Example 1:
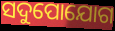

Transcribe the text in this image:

ସଦୁପୋଯୋଗ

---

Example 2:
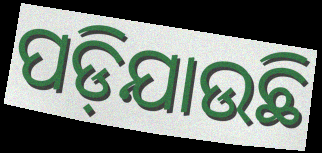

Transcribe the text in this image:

ପଡ଼ିଯାଉଛି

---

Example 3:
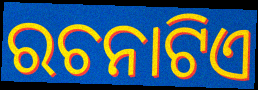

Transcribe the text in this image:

ରଚନାଟିଏ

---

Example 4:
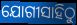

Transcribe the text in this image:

ଯୋଗୀସାହିଠୁ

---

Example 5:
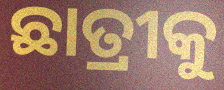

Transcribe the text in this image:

ଛାତ୍ରୀକୁ